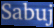
Sabuj